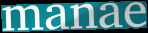
manae